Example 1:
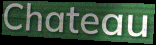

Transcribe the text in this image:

Chateau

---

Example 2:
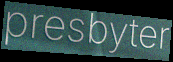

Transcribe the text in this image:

presbyter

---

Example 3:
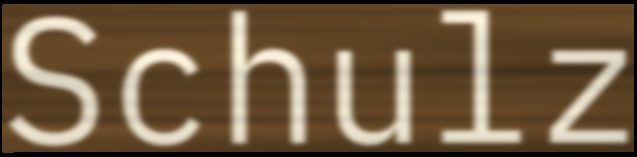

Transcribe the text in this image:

Schulz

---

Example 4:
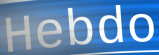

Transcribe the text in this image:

Hebdo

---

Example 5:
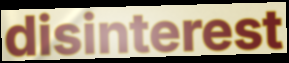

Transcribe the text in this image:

disinterest